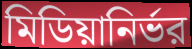
মিডিয়ানির্ভর